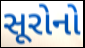
સૂરોનો